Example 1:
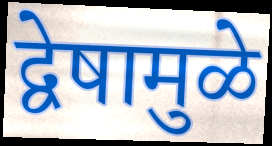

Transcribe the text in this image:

द्वेषामुळे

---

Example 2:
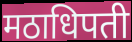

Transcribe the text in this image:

मठाधिपती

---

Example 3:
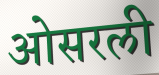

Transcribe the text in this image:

ओसरली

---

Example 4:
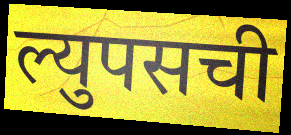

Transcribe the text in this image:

ल्युपसची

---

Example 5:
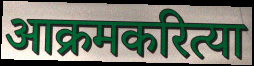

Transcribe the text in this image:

आक्रमकरित्या